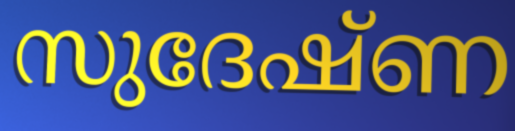
സുദേഷ്ണ